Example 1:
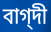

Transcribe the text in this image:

বাগ্‌দী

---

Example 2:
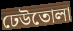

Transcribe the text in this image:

ঢেউতোলা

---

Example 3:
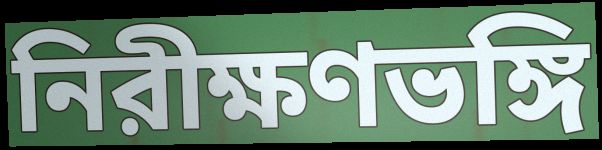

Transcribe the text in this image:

নিরীক্ষণভঙ্গি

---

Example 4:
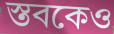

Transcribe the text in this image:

স্তবকেও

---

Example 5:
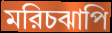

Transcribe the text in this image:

মরিচঝাপি